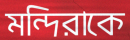
মন্দিরাকে